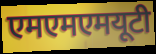
एमएमएमयूटी